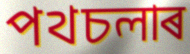
পথচলাৰ